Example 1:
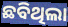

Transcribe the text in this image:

ଛବିଥିଲା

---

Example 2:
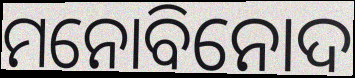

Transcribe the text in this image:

ମନୋବିନୋଦ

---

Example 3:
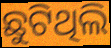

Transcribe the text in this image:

ଛୁଟିଥିଲି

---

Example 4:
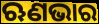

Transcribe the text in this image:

ଋଣଭାର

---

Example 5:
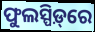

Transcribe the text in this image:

ଫୁଲସ୍ପିଡ଼୍‌ରେ